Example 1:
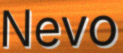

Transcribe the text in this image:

Nevo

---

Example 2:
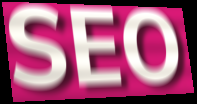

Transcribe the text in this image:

SEO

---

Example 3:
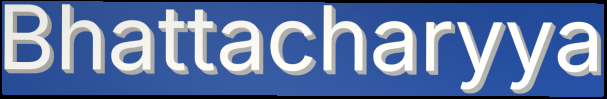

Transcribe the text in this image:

Bhattacharyya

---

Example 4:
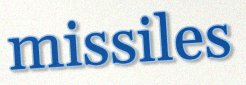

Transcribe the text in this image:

missiles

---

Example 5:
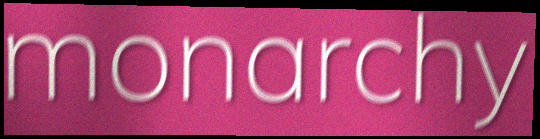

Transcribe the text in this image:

monarchy